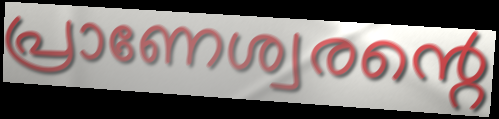
പ്രാണേശ്വരന്റെ